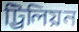
ট্রিলিয়ন